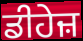
ਡੀਹੇਜ਼